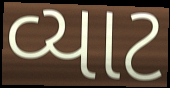
વ્યાટ